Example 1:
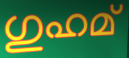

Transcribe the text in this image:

ഗുഹമ്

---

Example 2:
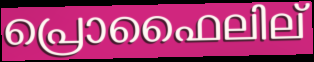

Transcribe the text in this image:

പ്രൊഫൈലില്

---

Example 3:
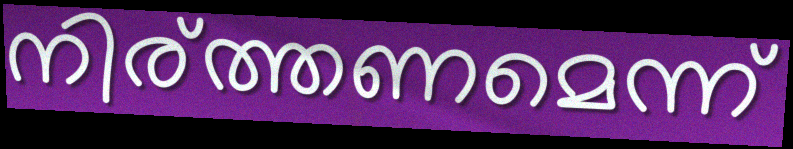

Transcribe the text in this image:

നിര്ത്തണമെന്ന്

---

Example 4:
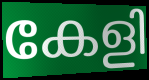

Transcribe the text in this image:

കേളി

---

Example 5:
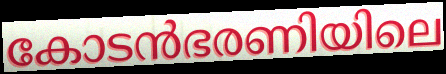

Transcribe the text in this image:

കോടൻഭരണിയിലെ